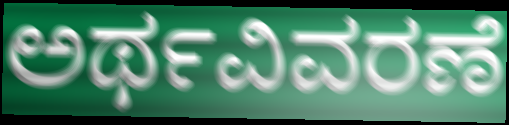
ಅರ್ಥವಿವರಣೆ